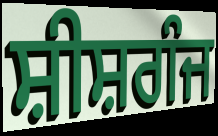
ਸ਼ੀਸ਼ਗੰਜ